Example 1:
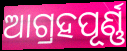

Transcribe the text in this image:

ଆଗ୍ରହପୂର୍ଣ୍ଣ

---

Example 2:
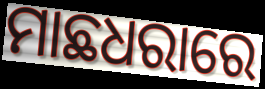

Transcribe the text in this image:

ମାଛଧରାରେ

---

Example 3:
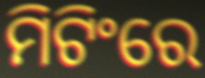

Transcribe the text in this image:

ମିଟିଂରେ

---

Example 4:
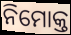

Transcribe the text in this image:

ନିମୋକ୍ତ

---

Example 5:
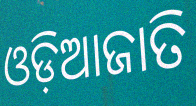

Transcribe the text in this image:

ଓଡ଼ିଆଜାତି